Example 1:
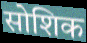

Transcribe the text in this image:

सोशिक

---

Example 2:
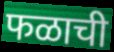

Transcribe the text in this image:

फळाची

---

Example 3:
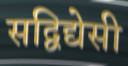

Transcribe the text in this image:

सद्विद्येसी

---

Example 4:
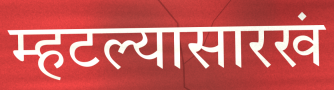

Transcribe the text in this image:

म्हटल्यासारखं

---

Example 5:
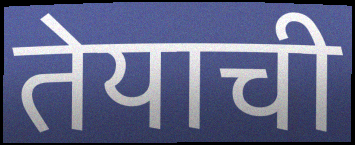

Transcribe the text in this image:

तेयाची